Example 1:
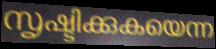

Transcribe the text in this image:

സൃഷ്ടിക്കുകയെന്ന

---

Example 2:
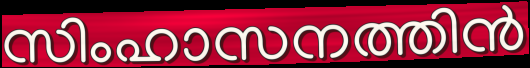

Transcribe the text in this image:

സിംഹാസനത്തിൻ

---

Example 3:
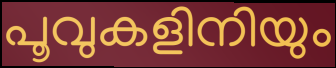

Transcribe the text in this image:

പൂവുകളിനിയും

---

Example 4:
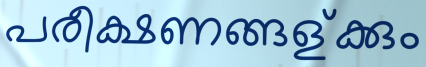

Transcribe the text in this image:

പരീക്ഷണങ്ങള്ക്കും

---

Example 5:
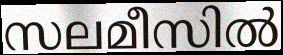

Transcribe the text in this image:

സലമീസിൽ